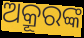
ଅକ୍ରୂରଙ୍କ